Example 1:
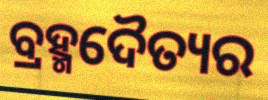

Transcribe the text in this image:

ବ୍ରହ୍ମଦୈତ୍ୟର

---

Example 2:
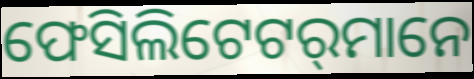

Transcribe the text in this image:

ଫେସିଲିଟେଟର୍‌ମାନେ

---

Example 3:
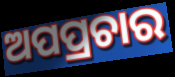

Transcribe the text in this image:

ଅପପ୍ରଚାର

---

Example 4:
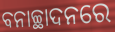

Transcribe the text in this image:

ବନାଚ୍ଛାଦନରେ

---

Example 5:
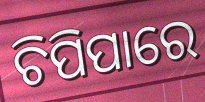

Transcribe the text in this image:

ଚିପିପାରେ